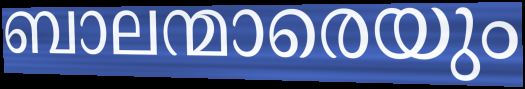
ബാലന്മാരെയും